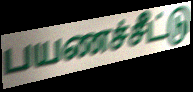
பயணச்சீட்டு